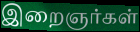
இறைஞர்கள்